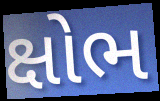
ક્ષોભ